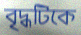
বৃদ্ধটিকে